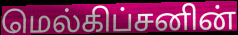
மெல்கிப்சனின்